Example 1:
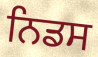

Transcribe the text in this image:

ਨਿਡਸ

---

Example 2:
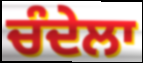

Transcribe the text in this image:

ਚੰਦੇਲਾ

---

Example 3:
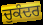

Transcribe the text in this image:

ਚੁਕੰਦਰ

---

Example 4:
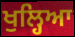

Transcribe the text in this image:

ਖੁਲ੍ਹਿਆ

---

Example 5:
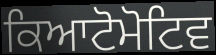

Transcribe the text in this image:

ਕਿਆਟੋਮੋਟਿਵ